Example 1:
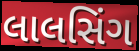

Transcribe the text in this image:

લાલસિંગ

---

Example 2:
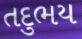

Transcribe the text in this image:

તદુભય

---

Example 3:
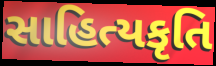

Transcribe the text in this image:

સાહિત્યકૃતિ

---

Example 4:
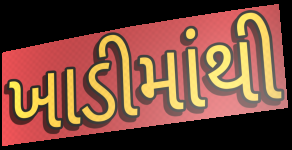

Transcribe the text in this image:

ખાડીમાંથી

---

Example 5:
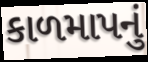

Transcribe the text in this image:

કાળમાપનું